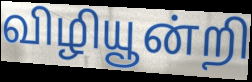
விழியூன்றி